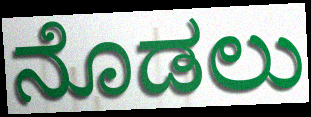
ನೊಡಲು